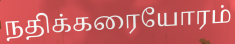
நதிக்கரையோரம்